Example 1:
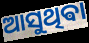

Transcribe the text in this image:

ଆସୁଥିଵା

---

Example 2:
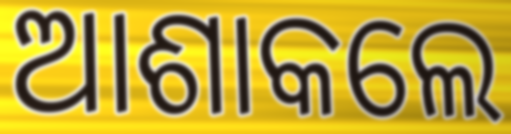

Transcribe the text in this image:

ଆଶାକଲେ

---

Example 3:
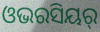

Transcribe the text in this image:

ଓଭରସିୟର୍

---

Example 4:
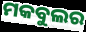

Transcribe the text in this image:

ମକବୁଲର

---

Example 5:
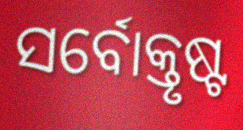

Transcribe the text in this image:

ସର୍ବୋକ୍ତୃଷ୍ଟ